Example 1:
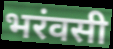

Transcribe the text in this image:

भरंवसी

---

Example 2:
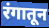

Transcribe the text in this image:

रंगातून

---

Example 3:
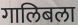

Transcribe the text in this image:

गालिबला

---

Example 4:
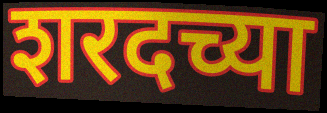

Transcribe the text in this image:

शरदच्या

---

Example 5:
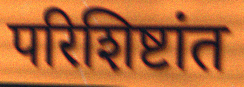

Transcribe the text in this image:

परिशिष्टांत